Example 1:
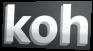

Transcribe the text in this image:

koh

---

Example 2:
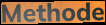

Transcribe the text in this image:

Methode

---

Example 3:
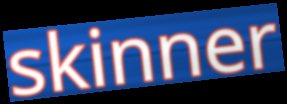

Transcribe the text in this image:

skinner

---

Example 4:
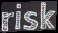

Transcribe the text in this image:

risk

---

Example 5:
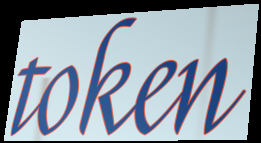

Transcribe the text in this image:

token